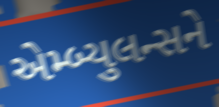
એમ્બ્યુલન્સને